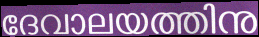
ദേവാലയത്തിനു